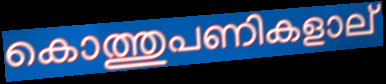
കൊത്തുപണികളാല്